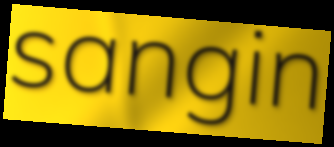
sangin